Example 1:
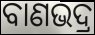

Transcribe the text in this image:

ବାଣଭଦ୍ର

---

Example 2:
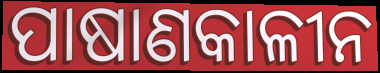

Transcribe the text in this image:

ପାଷାଣକାଳୀନ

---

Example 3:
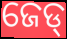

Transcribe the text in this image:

ଜେଡ୍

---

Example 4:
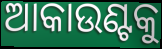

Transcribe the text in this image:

ଆକାଉଣ୍ଟକୁ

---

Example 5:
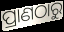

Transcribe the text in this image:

ପ୍ରାଣଠାରୁ